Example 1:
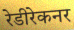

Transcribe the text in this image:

रेडीरेकनर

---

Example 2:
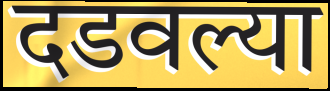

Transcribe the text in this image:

दडवल्या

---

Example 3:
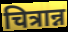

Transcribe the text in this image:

चित्रान्न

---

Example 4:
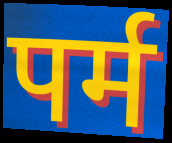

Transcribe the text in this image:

पर्म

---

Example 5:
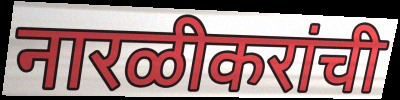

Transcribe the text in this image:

नारळीकरांची